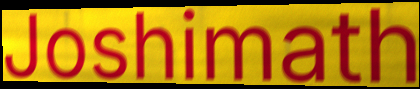
Joshimath